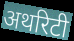
अथरिटी